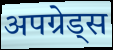
अपग्रेड्स